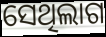
ସେଥିଲାଗ